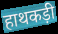
हाथकड़ी